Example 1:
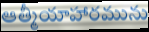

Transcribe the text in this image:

ఆత్మీయాహారమును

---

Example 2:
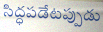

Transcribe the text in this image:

సిద్ధపడేటప్పుడు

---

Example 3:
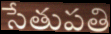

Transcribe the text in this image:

సేతుపతి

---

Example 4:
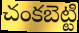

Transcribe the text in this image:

చంకబెట్టి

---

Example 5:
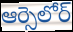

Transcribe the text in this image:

ఆర్సెలోర్